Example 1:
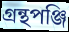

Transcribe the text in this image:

গ্রন্থপঞ্জি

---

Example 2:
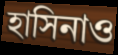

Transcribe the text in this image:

হাসিনাও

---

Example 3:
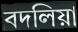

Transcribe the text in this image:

বদলিয়া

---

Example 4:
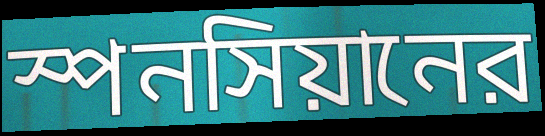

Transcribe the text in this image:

স্পনসিয়ানের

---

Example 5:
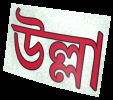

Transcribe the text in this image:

উল্লা